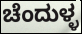
ಚೆಂದುಳ್ಳ